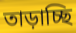
তাড়াচ্ছি